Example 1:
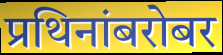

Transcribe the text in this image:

प्रथिनांबरोबर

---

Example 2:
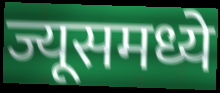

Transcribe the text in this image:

ज्यूसमध्ये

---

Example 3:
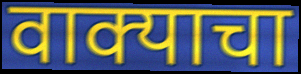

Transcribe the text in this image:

वाक्याचा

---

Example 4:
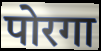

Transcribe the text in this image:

पोरगा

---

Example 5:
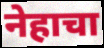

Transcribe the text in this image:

नेहाचा